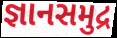
જ્ઞાનસમુદ્ર